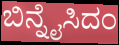
ಬಿನ್ನೈಸಿದಂ